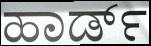
ಹಾರ್ಡ್